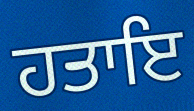
ਹਤਾਇ